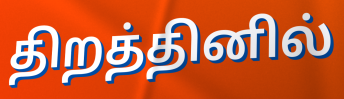
திறத்தினில்